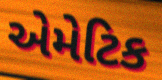
એમેટિક